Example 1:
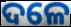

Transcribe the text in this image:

ଦଳେ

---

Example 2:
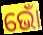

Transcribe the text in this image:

ଭୋଁ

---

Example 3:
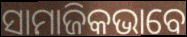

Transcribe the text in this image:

ସାମାଜିକଭାବେ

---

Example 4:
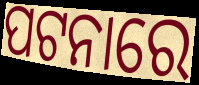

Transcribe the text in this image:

ପଟନାରେ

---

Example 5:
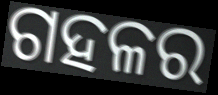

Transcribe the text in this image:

ଗହଳର